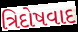
ત્રિદોષવાદ